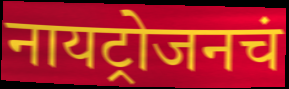
नायट्रोजनचं